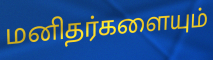
மனிதர்களையும்